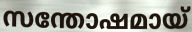
സന്തോഷമായ്